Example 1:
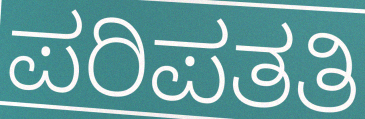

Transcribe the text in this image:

ಪರಿಪತತಿ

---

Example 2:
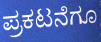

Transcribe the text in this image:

ಪ್ರಕಟನೆಗೂ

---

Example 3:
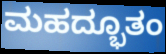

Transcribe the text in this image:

ಮಹದ್ಭೂತಂ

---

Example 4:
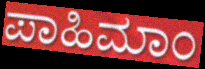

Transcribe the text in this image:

ಪಾಹಿಮಾಂ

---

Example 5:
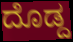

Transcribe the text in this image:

ದೊಡ್ದ